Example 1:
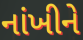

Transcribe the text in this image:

નાંખીને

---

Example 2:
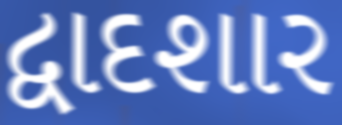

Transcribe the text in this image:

દ્વાદશાર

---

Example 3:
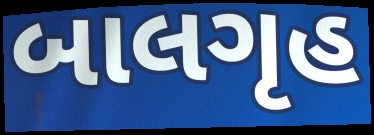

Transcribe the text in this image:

બાલગૃહ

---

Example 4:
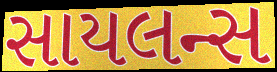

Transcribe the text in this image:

સાયલન્સ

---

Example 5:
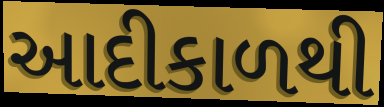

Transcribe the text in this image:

આદીકાળથી